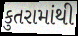
કુતરામાંથી